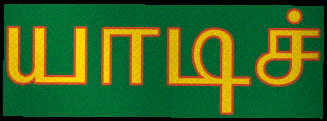
யாடிச்